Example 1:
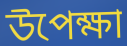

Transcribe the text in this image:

উপেক্ষা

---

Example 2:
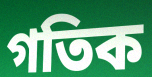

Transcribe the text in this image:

গতিক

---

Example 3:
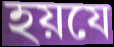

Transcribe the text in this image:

হয়যে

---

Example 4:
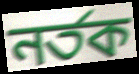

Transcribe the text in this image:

নৰ্তক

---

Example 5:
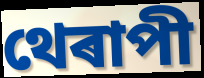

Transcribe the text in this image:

থেৰাপী